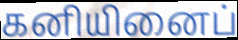
கனியினைப்